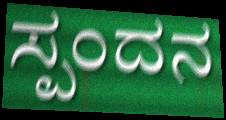
ಸ್ಪಂದನ